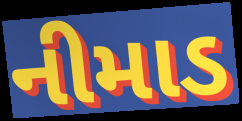
નીમાડ